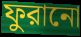
ফুরানো